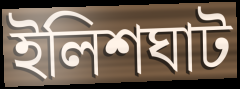
ইলিশঘাট